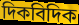
দিকবিদিক